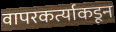
वापरकर्त्याकडून